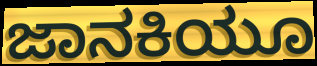
ಜಾನಕಿಯೂ